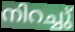
നിറച്ചു്